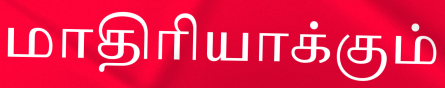
மாதிரியாக்கும்